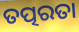
ତତ୍ପରତା